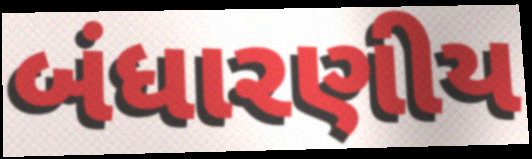
બંધારણીય